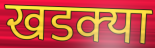
खडक्या